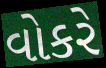
વોકરે